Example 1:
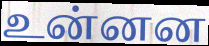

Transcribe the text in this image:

உன்னன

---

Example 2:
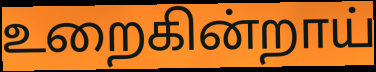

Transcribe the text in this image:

உறைகின்றாய்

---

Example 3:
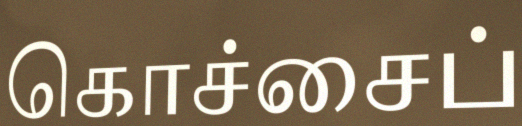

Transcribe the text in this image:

கொச்சைப்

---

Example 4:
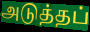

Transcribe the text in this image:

அடுத்தப்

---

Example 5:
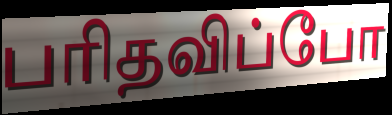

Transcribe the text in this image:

பரிதவிப்போ